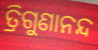
ତ୍ରିଗୁଣାନନ୍ଦ